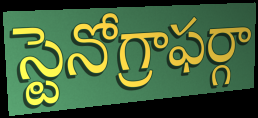
స్టెనోగ్రాఫర్గా